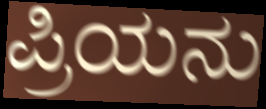
ಪ್ರಿಯನು